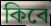
কিবে